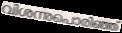
വിശന്നുപൊരിഞ്ഞ്